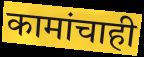
कामांचाही